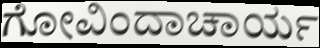
ಗೋವಿಂದಾಚಾರ್ಯ